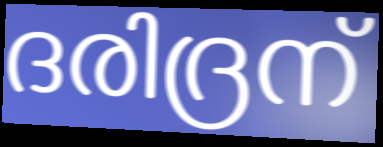
ദരിദ്രന്